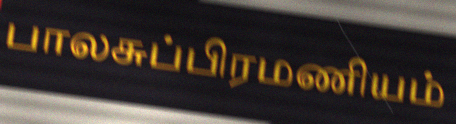
பாலசுப்பிரமணியம்